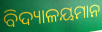
ବିଦ୍ୟାଳୟମାନ